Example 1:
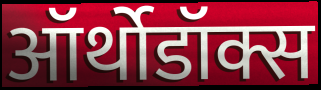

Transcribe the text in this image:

ऑर्थोडॉक्स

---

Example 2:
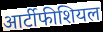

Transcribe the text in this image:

आर्टीफीशियल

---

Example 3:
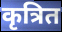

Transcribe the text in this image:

कृत्रित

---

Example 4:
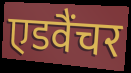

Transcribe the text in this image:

एडवैंचर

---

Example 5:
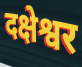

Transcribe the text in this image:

दक्षेश्वर